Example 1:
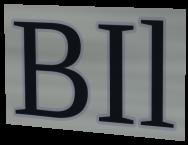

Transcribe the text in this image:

BIl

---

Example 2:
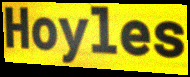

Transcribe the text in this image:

Hoyles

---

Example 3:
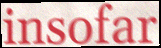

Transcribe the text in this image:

insofar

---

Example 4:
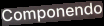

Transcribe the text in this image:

Componendo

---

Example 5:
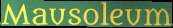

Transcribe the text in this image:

Mausoleum